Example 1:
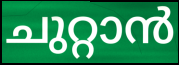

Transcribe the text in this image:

ചുറ്റാൻ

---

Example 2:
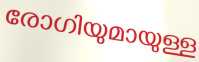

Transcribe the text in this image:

രോഗിയുമായുള്ള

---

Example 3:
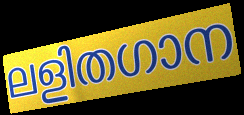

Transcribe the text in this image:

ലളിതഗാന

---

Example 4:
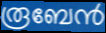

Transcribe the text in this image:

രൂബേൻ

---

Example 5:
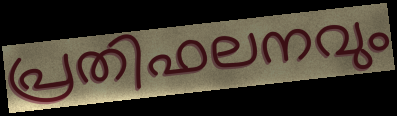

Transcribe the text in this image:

പ്രതിഫലനവും